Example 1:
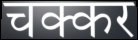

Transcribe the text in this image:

चक्‍कर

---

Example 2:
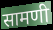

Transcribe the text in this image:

सामणी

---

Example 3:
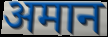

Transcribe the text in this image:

अमान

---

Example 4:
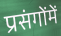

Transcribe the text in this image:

प्रसंगोंमें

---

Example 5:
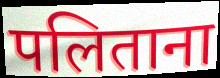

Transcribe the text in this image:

पलिताना